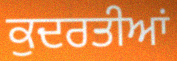
ਕੁਦਰਤੀਆਂ